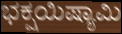
ಭಕ್ಷಯಿಷ್ಯಾಮಿ